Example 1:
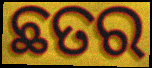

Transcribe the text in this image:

ଛତର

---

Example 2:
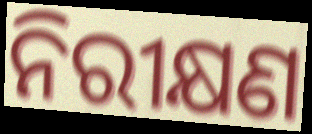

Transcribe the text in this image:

ନିରୀକ୍ଷଣ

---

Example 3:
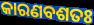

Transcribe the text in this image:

କାରଣବଶତଃ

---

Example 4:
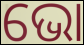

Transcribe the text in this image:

ଭୋ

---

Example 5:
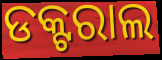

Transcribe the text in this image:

ଡକ୍ଟରାଲ